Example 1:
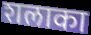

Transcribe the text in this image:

शलाका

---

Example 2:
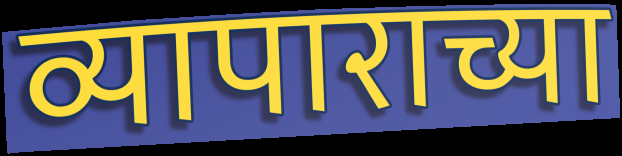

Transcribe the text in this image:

व्यापाराच्या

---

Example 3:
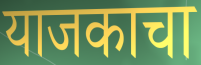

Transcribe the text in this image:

याजकाचा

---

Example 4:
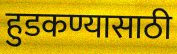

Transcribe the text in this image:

हुडकण्यासाठी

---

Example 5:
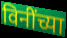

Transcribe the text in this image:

विनींच्या